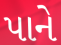
પાને